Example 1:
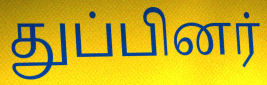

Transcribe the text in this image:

துப்பினர்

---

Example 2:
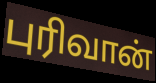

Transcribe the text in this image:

புரிவான்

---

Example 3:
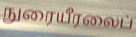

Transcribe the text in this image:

நுரையீரலைப்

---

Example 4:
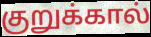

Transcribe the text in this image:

குறுக்கால்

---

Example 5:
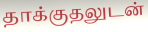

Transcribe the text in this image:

தாக்குதலுடன்